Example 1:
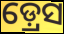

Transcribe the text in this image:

ଡ଼୍ରେସ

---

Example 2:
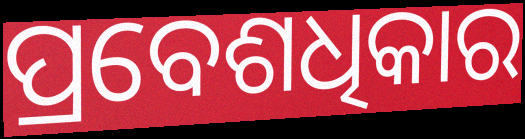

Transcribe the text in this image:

ପ୍ରବେଶଧିକାର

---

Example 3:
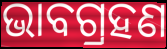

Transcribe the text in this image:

ଭାବଗ୍ରହଣ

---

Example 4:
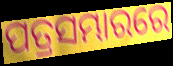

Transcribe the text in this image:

ପତ୍ରସମ୍ଭାରରେ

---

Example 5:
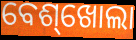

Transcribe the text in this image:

ବେଶ୍‌ଖୋଲା